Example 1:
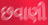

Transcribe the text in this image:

છવાણી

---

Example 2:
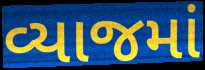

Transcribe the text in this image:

વ્યાજમાં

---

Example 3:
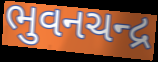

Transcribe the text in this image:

ભુવનચન્દ્ર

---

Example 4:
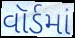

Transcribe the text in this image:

વૉર્ડમાં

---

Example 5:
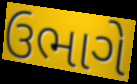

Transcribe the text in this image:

ઉભાગે